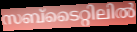
സബ്ടൈറ്റിലിൽ